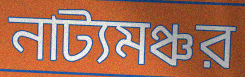
নাট্যমঞ্চর